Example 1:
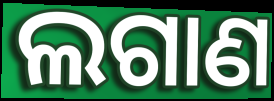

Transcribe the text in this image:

ଲଗାଣ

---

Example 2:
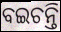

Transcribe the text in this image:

ବଇଚନ୍ତି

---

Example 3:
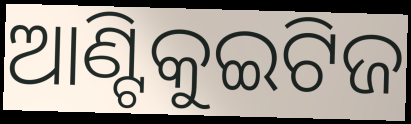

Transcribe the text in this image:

ଆଣ୍ଟିକୁଇଟିଜ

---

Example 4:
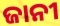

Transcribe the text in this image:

ଜାନୀ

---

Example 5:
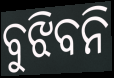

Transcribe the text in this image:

ବୁଝିବନି